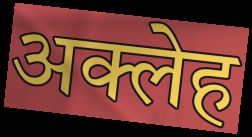
अक्लेह